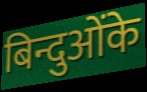
बिन्दुओंके